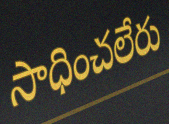
సాధించలేరు